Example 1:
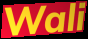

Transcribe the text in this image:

Wali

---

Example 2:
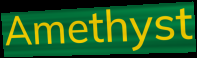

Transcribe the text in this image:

Amethyst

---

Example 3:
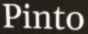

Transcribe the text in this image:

Pinto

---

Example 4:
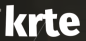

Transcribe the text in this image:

krte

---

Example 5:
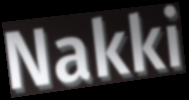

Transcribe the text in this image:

Nakki